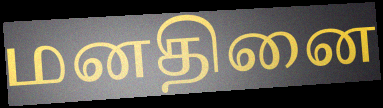
மனதினை